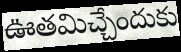
ఊతమిచ్చేందుకు